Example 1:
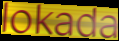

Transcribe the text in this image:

lokada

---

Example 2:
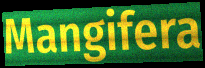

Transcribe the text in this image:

Mangifera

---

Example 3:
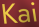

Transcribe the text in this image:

Kai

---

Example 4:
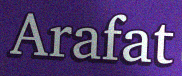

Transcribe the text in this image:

Arafat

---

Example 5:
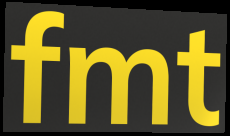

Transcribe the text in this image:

fmt